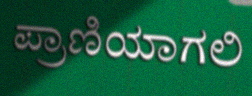
ಪ್ರಾಣಿಯಾಗಲಿ